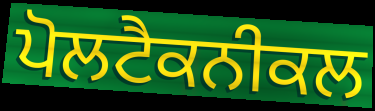
ਪੋਲਟੈਕਨੀਕਲ